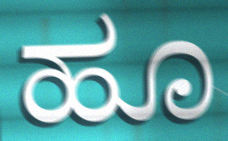
ಹೂ